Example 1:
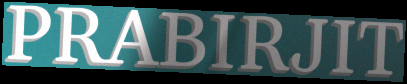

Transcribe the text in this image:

PRABIRJIT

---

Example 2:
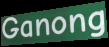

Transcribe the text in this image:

Ganong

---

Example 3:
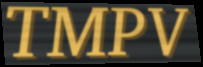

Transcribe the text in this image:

TMPV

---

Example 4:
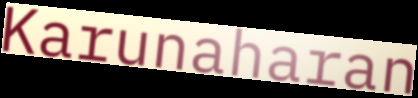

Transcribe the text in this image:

Karunaharan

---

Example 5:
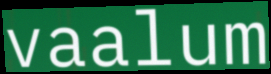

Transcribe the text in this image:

vaalum